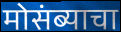
मोसंब्याचा